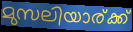
മുസലിയാര്ക്ക്